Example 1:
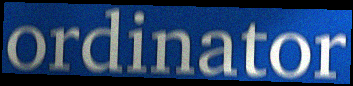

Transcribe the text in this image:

ordinator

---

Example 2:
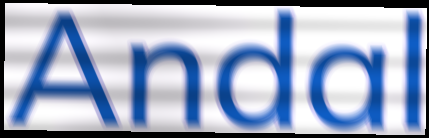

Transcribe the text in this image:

Andal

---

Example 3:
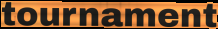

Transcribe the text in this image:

tournament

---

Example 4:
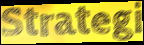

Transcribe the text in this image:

Strategi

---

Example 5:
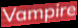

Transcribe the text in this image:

Vampire